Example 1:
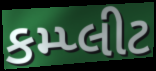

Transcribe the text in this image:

કમ્પ્લીટ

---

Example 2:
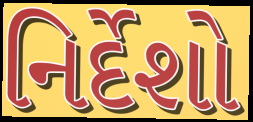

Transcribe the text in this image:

નિર્દેશો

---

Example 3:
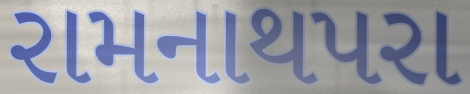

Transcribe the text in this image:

રામનાથપરા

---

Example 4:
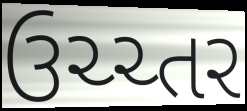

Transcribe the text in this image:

ઉચ્ચ્તર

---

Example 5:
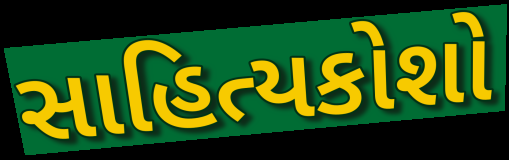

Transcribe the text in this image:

સાહિત્યકોશો